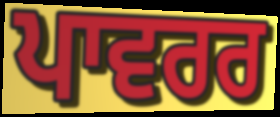
ਪਾਵਰਰ